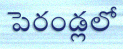
పెరండ్లలో